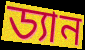
ড্যান